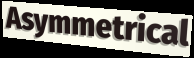
Asymmetrical